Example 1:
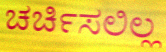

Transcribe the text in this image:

ಚರ್ಚಿಸಲಿಲ್ಲ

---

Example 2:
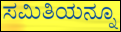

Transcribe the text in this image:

ಸಮಿತಿಯನ್ನೂ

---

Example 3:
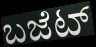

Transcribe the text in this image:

ಬಜೆಟ್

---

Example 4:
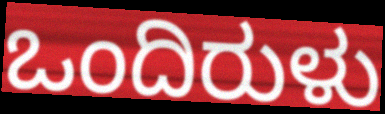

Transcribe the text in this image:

ಒಂದಿರುಳು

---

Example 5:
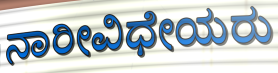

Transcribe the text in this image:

ನಾರೀವಿಧೇಯರು